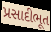
પ્રસાદીભૂત